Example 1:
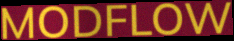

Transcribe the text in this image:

MODFLOW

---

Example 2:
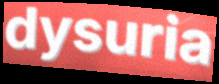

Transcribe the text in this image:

dysuria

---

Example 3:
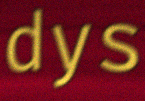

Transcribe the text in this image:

dys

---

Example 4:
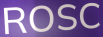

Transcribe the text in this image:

ROSC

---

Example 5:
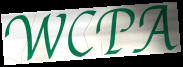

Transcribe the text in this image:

WCPA